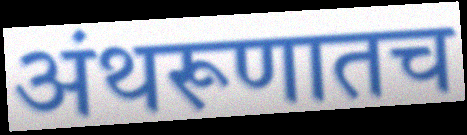
अंथरूणातच